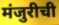
मंजुरीची